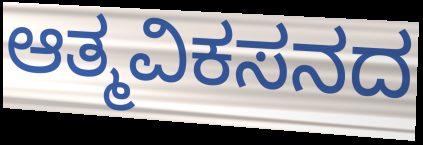
ಆತ್ಮವಿಕಸನದ